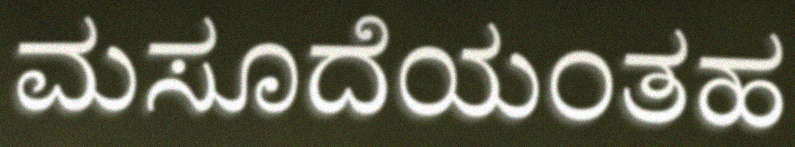
ಮಸೂದೆಯಂತಹ